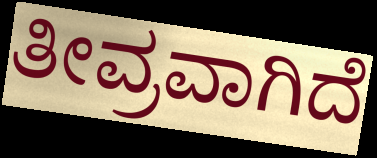
ತೀವ್ರವಾಗಿದೆ